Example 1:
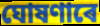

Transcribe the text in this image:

ঘোষণাৰে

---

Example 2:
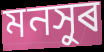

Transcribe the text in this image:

মনসুৰ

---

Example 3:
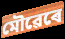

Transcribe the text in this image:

মৌৱেৰে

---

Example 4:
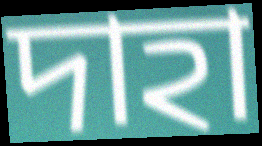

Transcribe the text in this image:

দাহা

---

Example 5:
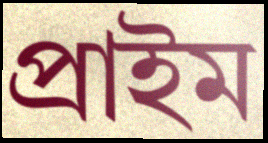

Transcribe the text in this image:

প্ৰাইম